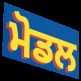
ਮੋਡਲ